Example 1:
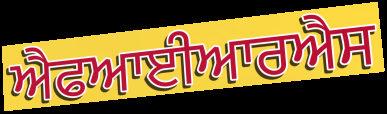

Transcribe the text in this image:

ਐਫਆਈਆਰਐਸ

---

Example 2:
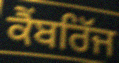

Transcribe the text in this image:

ਕੈਂਬਰਿੱਜ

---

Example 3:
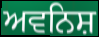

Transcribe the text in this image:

ਅਵਨਿਸ਼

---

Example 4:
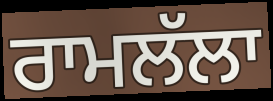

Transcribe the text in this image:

ਰਾਮਲੱਲਾ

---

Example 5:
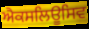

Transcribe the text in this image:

ਐਕਸਲਿਊਸਿਵ